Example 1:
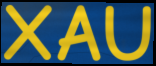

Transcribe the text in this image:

XAU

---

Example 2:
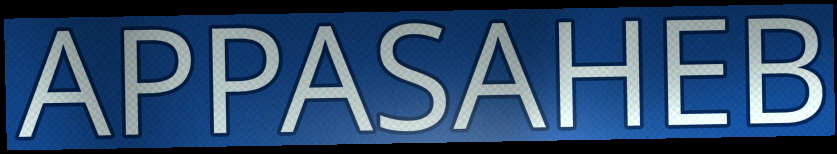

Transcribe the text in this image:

APPASAHEB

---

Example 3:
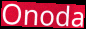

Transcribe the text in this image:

Onoda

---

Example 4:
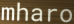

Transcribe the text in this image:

mharo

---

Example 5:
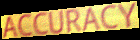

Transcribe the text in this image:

ACCURACY